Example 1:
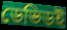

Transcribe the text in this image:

ডেভিডই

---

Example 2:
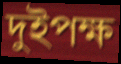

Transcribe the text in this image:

দুইপক্ষ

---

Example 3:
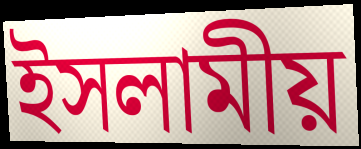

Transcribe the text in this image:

ইসলামীয়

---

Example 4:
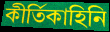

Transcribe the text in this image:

কীর্তিকাহিনি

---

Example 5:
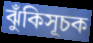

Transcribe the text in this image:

ঝুঁকিসূচক